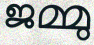
ജമ്മു